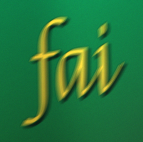
fai